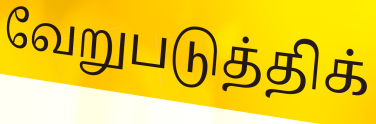
வேறுபடுத்திக்